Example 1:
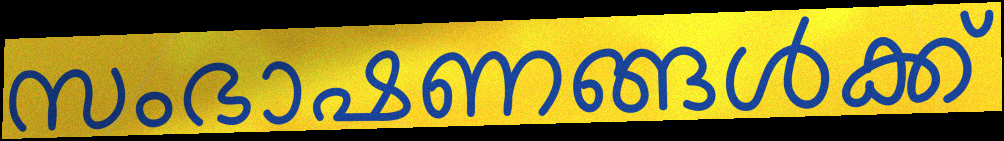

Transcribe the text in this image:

സംഭാഷണങ്ങൾക്ക്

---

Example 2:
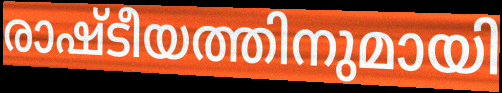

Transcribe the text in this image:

രാഷ്ടീയത്തിനുമായി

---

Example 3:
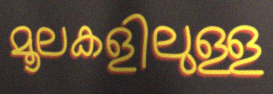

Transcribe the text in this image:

മൂലകളിലുള്ള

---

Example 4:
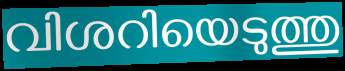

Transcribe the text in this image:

വിശറിയെടുത്തു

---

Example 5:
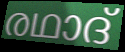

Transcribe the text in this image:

രഥാദ്